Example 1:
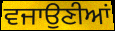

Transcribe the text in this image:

ਵਜਾਉਣੀਆਂ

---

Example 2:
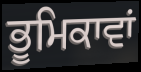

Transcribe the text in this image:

ਭੂਮਿਕਾਵਾਂ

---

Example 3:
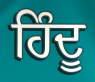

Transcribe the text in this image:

ਹਿੰਦੂ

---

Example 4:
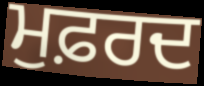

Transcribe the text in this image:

ਮੁਫ਼ਰਦ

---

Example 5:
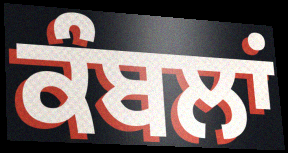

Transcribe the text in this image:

ਕੰਬਲਾਂ